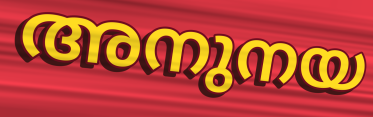
അനുനയ